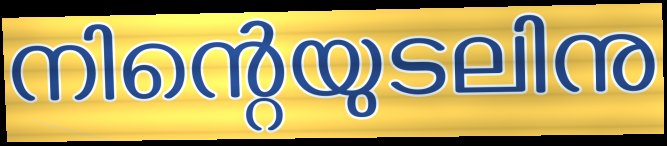
നിന്റെയുടലിനു